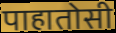
पाहातोसी